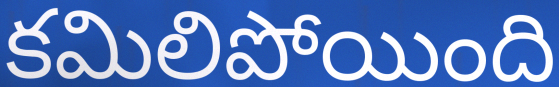
కమిలిపోయింది